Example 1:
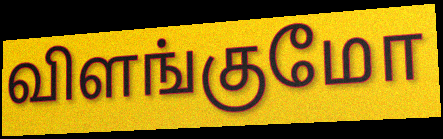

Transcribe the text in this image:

விளங்குமோ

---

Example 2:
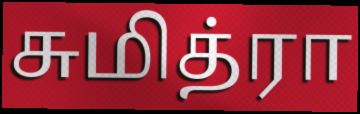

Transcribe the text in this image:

சுமித்ரா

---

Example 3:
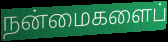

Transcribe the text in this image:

நன்மைகளைப்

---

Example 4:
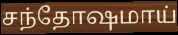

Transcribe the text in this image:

சந்தோஷமாய்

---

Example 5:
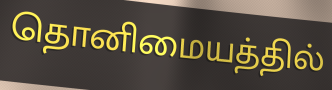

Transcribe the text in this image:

தொனிமையத்தில்